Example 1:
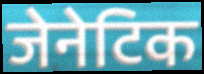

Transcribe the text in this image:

जेनेटिक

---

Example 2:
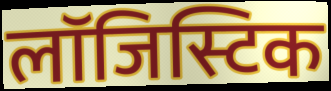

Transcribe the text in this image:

लॉजिस्टिक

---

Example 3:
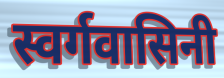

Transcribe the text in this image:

स्वर्गवासिनी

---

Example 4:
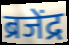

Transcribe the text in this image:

ब्रजेंद्र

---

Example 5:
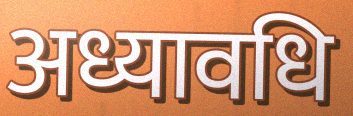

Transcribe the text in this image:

अध्यावधि